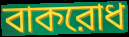
বাকরোধ